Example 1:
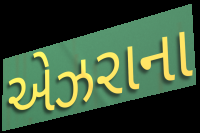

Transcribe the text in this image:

એઝરાના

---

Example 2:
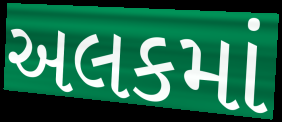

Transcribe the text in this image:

અલકમાં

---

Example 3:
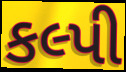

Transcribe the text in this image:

કલ્પી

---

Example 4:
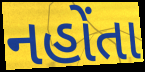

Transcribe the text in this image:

નહોંતા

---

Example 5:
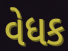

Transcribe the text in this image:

વેધક